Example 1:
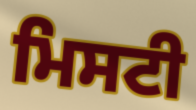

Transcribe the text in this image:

ਮਿਸਟੀ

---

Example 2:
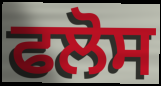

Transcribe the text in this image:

ਫਲੋਸ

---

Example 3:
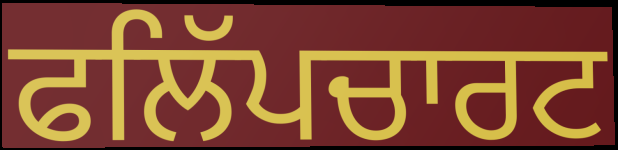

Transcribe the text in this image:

ਫਲਿੱਪਚਾਰਟ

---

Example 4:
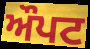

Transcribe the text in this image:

ਔਪਟ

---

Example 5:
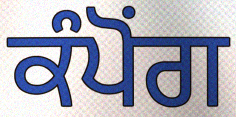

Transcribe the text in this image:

ਕੰਪੋਂਗ